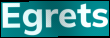
Egrets